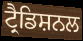
ਟ੍ਰੈਡਿਸ਼ਨਲ